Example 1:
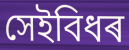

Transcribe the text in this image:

সেইবিধৰ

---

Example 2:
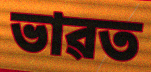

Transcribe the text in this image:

ভাৱত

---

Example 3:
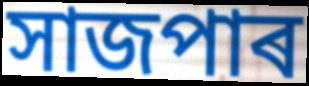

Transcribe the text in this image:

সাজপাৰ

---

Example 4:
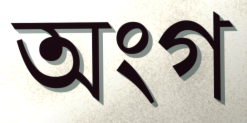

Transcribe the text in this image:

অংগ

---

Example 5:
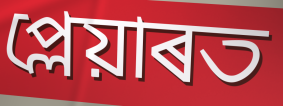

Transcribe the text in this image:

প্লেয়াৰত